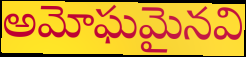
అమోఘమైనవి